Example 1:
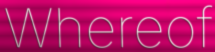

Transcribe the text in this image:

Whereof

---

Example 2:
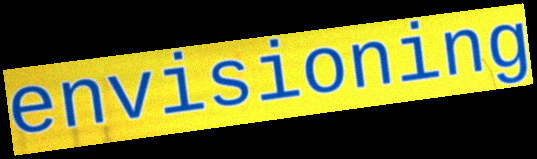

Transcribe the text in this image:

envisioning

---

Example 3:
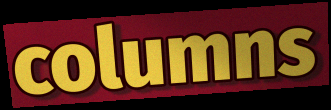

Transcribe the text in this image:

columns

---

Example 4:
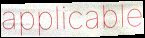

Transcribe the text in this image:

applicable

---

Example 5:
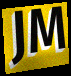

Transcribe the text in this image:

JM